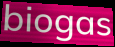
biogas